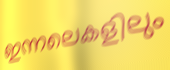
ഇന്നലെകളിലും